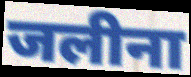
जलीना